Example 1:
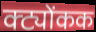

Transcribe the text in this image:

क्ट्योंकक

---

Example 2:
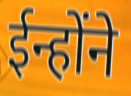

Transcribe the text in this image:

ईन्होंने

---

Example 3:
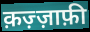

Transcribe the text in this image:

क़ज़्ज़ाफ़ी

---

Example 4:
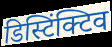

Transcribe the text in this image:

डिस्टिंक्टिव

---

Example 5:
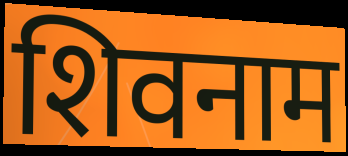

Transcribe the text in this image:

शिवनाम